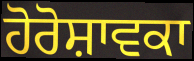
ਹੋਰੋਸ਼ਾਵਕਾ